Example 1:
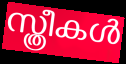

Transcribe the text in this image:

സ്ത്രീകൾ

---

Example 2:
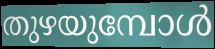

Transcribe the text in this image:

തുഴയുമ്പോൾ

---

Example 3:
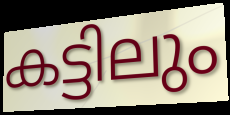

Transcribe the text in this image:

കട്ടിലും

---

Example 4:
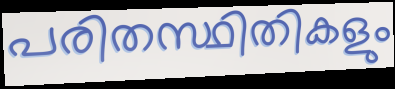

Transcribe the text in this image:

പരിതസ്ഥിതികളും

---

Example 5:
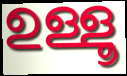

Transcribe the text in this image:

ഉള്ളൂ